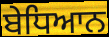
ਬੇਧਿਆਨ